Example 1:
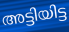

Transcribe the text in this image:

അട്ടിയിട്ട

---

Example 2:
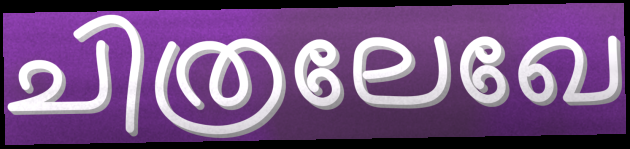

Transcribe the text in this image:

ചിത്രലേഖേ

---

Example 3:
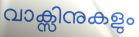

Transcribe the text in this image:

വാക്സിനുകളും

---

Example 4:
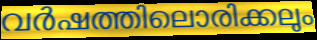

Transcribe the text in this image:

വർഷത്തിലൊരിക്കലും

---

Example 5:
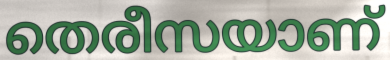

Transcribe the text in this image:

തെരീസയാണ്